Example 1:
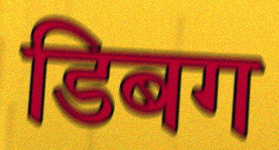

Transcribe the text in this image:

डिबग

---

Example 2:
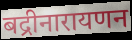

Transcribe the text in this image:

बद्रीनारायणन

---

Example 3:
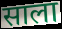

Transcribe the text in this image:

साला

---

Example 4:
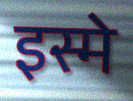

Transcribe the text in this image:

इस्मे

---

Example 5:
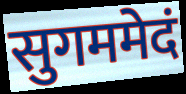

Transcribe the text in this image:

सुगममेदं